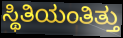
ಸ್ಥಿತಿಯಂತಿತ್ತು